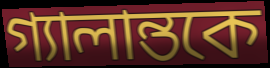
গ্যালান্তকে